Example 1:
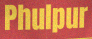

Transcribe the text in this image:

Phulpur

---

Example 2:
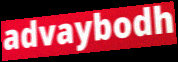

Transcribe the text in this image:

advaybodh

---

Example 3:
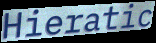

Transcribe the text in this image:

Hieratic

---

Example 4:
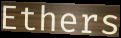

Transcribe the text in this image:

Ethers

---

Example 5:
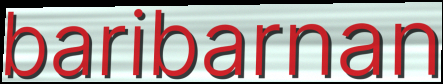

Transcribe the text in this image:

baribarnan